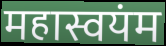
महास्वयंम